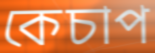
কেচাপ